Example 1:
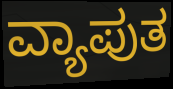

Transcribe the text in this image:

ವ್ಯಾಪುತ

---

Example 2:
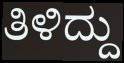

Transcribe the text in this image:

ತಿಳಿದ್ದು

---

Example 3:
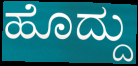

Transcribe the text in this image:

ಹೊದ್ದು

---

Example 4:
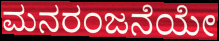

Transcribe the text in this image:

ಮನರಂಜನೆಯೇ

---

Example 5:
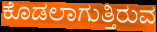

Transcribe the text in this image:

ಕೊಡಲಾಗುತ್ತಿರುವ